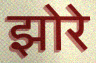
झोरे